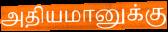
அதியமானுக்கு